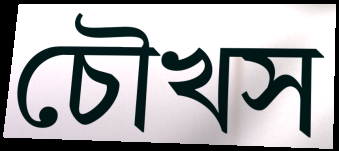
চৌখস